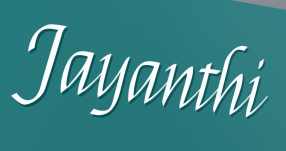
Jayanthi